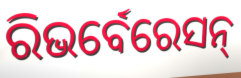
ରିଭର୍ବେରେସନ୍